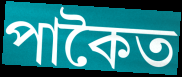
পাকৈত